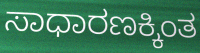
ಸಾಧಾರಣಕ್ಕಿಂತ